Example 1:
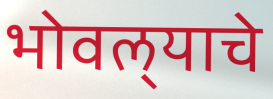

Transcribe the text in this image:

भोवल्याचे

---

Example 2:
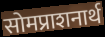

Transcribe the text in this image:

सोमप्राशनार्थ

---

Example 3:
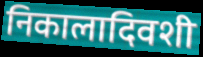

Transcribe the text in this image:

निकालादिवशी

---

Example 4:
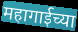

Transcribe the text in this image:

महागाईच्या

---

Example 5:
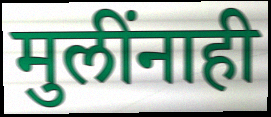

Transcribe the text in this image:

मुलींनाही